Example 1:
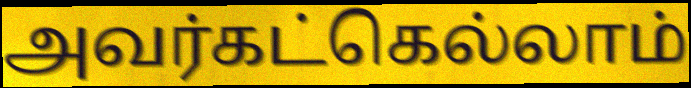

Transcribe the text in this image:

அவர்கட்கெல்லாம்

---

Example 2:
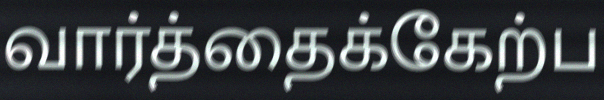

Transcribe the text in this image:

வார்த்தைக்கேற்ப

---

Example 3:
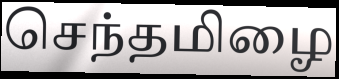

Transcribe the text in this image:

செந்தமிழை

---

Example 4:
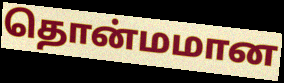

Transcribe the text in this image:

தொன்மமான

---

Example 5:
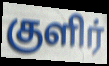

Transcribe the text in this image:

குளிர்